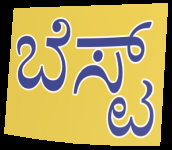
ಬೆಸ್ಟ್